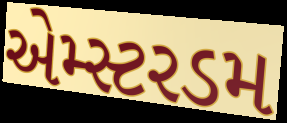
એમ્સ્ટરડમ